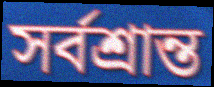
সৰ্বশ্ৰান্ত